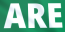
ARE